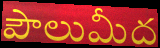
పౌలుమీద